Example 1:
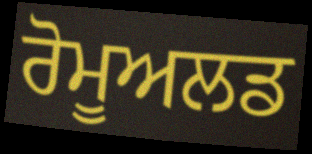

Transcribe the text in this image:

ਰੋਮੂਅਲਡ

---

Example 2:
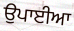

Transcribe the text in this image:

ਉਪਾਈਆ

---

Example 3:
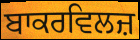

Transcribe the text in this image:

ਬਾਕਰਵਿਲਜ਼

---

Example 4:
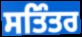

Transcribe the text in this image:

ਸਤਿੰਤਰ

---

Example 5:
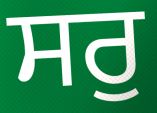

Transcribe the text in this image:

ਸਰੁ